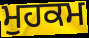
ਮੁਹਕਮ